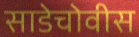
साडेचोवीस